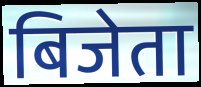
बिजेता